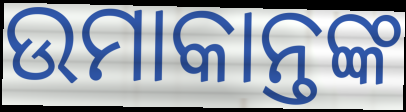
ଉମାକାନ୍ତଙ୍କ